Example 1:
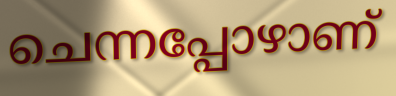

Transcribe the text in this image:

ചെന്നപ്പോഴാണ്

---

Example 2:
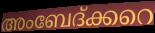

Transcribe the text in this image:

അംബേദ്ക്കറെ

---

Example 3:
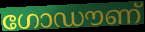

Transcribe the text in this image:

ഗോഡൗണ്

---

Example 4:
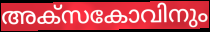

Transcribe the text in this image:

അക്സകോവിനും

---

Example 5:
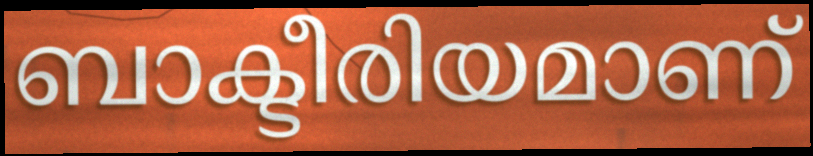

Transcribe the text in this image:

ബാക്ടീരിയമാണ്